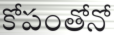
కోపంతోనో